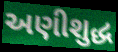
અણીશુદ્ધ